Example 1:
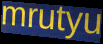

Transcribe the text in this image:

mrutyu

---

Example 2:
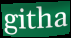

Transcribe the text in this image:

githa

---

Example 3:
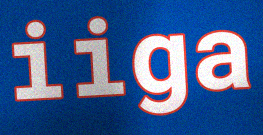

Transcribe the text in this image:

iiga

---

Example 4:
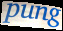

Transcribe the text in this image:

pung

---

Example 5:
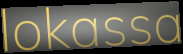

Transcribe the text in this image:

lokassa